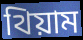
থিয়াম